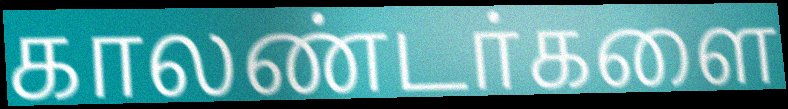
காலண்டர்களை